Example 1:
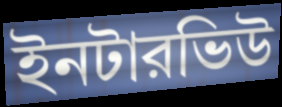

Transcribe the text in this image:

ইনটারভিউ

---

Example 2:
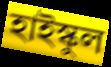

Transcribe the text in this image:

হাইস্কুল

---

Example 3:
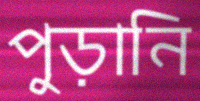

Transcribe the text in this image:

পুড়ানি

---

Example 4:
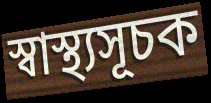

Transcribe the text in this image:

স্বাস্থ্যসূচক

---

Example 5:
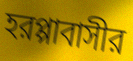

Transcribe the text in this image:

হরপ্পাবাসীর